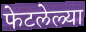
फेटलेल्या